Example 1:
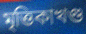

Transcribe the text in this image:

মৃত্তিকাখণ্ড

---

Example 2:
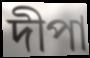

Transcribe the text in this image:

দীপা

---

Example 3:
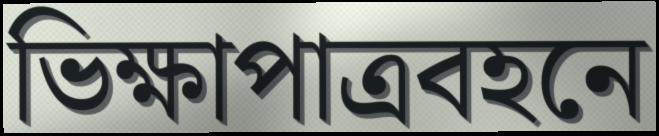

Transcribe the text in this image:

ভিক্ষাপাত্রবহনে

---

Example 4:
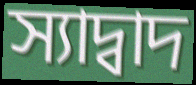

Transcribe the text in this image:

স্যাদ্বাদ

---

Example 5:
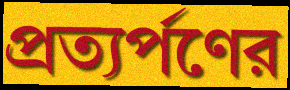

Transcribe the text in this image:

প্রত্যর্পণের